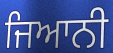
ਜਿਆਨੀ